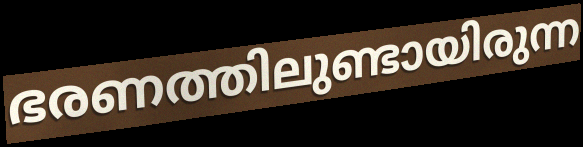
ഭരണത്തിലുണ്ടായിരുന്ന